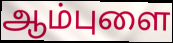
ஆம்புளை